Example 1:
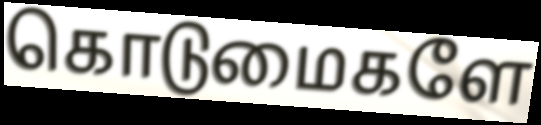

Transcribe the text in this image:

கொடுமைகளே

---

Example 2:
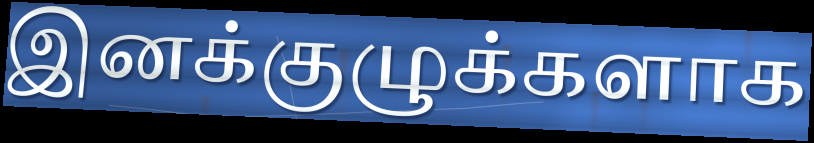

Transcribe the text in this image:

இனக்குழுக்களாக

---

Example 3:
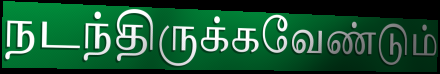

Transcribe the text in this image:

நடந்திருக்கவேண்டும்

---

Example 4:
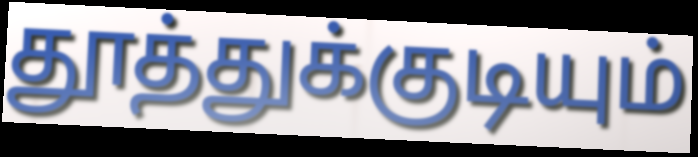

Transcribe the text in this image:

தூத்துக்குடியும்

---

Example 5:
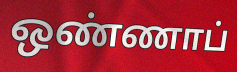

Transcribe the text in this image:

ஒண்ணாப்